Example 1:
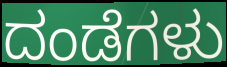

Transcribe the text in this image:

ದಂಡೆಗಳು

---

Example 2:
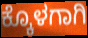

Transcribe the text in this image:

ಕ್ಕೊಳಗಾಗಿ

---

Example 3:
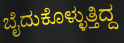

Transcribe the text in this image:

ಬೈದುಕೊಳ್ಳುತ್ತಿದ್ದ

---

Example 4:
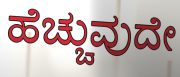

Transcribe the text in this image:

ಹೆಚ್ಚುವುದೇ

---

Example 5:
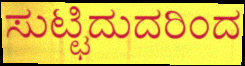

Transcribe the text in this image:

ಸುಟ್ಟಿದುದರಿಂದ